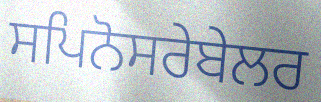
ਸਪਿਨੋਸਰੇਬੇਲਰ